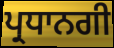
ਪ੍ਰਧਾਨਗੀ